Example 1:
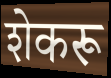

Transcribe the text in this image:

शेकरू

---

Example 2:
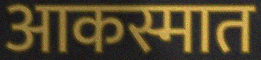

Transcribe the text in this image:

आकस्मात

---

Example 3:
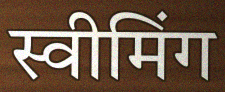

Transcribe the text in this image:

स्वीमिंग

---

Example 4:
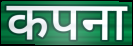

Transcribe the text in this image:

कपना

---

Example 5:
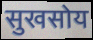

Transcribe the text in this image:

सुखसोय